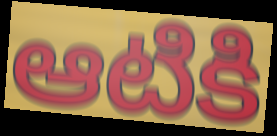
ఆటికి